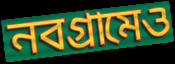
নবগ্রামেও